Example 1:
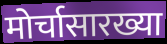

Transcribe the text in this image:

मोर्चासारख्या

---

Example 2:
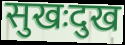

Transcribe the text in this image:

सुखःदुख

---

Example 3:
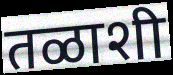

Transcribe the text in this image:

तळाशी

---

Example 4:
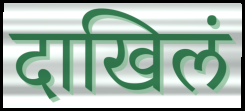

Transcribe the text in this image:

दाखिलं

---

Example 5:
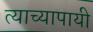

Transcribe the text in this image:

त्याच्यापायी